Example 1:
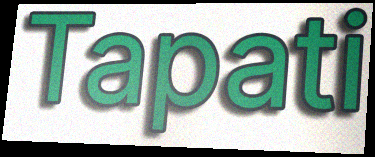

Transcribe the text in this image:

Tapati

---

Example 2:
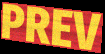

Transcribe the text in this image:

PREV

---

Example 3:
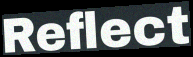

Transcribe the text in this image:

Reflect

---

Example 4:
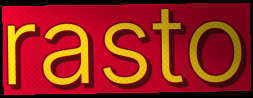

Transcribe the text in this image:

rasto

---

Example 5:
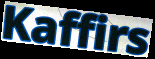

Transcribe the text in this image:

Kaffirs